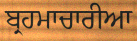
ਬ੍ਰਹਮਾਚਾਰੀਆ